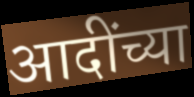
आदींच्या